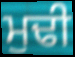
ਮੁਢੀ